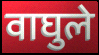
वाघुले